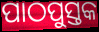
ପାଠପୁସ୍ତକ